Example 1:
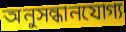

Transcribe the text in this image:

অনুসন্ধানযোগ্য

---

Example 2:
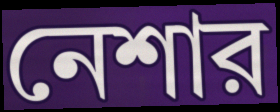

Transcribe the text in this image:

নেশার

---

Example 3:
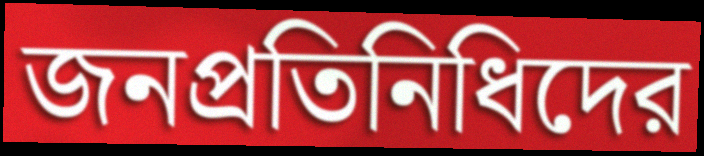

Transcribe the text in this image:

জনপ্রতিনিধিদের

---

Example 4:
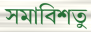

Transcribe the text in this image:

সমাবিশতু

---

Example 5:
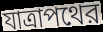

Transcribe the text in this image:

যাত্রাপথের